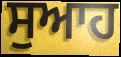
ਸੁਆਹ